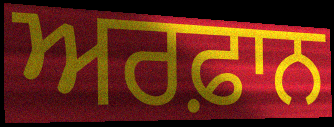
ਅਰਫ਼ਾਨ